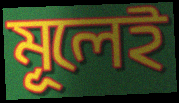
মূলেই